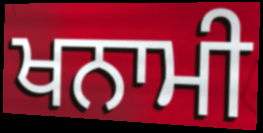
ਖਨਾਮੀ